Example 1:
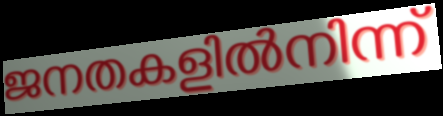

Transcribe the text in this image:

ജനതകളിൽനിന്ന്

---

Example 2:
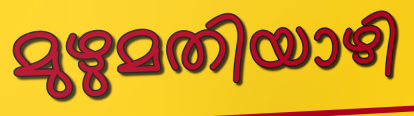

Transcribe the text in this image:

മുഴുമതിയാഴി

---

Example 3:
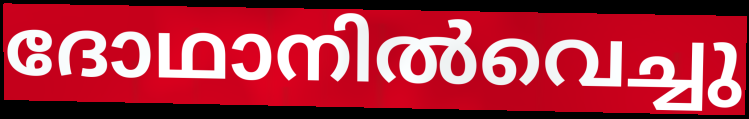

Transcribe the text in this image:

ദോഥാനിൽവെച്ചു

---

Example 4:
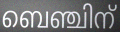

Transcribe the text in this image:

ബെഞ്ചിന്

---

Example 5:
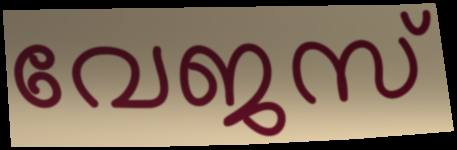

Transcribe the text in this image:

വേജസ്